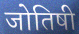
जोतिषी